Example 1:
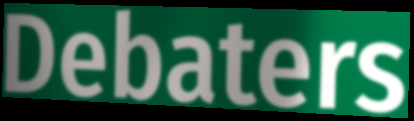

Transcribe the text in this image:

Debaters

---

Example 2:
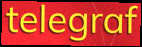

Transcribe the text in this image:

telegraf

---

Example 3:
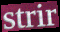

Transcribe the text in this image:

strir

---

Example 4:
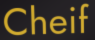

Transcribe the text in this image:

Cheif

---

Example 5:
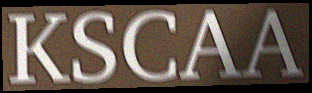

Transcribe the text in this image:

KSCAA